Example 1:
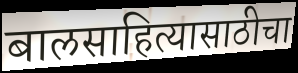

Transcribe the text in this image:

बालसाहित्यासाठीचा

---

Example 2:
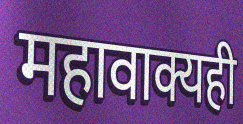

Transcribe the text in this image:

महावाक्यही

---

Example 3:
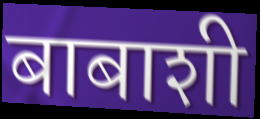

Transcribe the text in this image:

बाबाशी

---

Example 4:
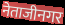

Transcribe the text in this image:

नेताजीनगर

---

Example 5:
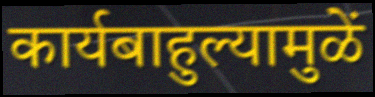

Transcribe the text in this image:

कार्यबाहुल्यामुळें